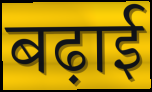
बढ़ाई